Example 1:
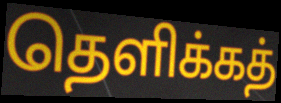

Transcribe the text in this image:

தெளிக்கத்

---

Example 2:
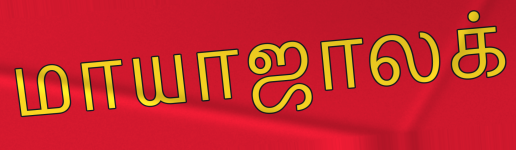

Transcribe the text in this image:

மாயாஜாலக்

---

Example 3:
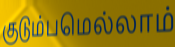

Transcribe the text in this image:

குடும்பமெல்லாம்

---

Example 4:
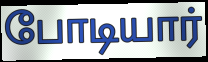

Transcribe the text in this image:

போடியார்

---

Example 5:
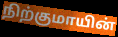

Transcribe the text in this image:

நிற்குமாயின்